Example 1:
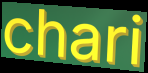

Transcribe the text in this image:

chari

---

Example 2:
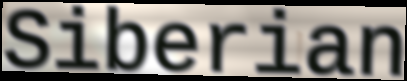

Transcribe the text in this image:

Siberian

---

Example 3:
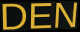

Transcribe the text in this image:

DEN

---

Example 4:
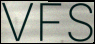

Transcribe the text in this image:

VFS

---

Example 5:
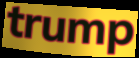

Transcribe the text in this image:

trump